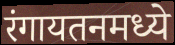
रंगायतनमध्ये